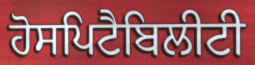
ਹੋਸਪਿਟੈਬਿਲੀਟੀ